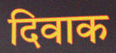
दिवाक